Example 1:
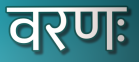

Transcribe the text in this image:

वरणः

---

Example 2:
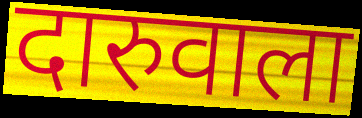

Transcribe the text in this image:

दारुवाला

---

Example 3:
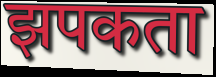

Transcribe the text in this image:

झपकता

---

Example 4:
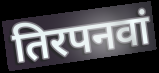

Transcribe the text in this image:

तिरपनवां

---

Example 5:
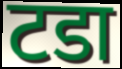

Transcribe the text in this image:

टडा